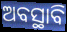
ଅବସ୍ଥାବି